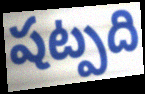
షట్పది